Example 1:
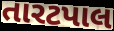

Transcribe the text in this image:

તારટપાલ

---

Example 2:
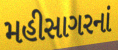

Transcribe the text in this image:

મહીસાગરનાં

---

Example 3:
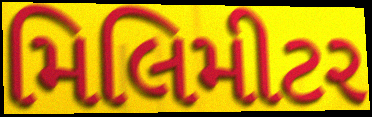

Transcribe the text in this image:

મિલિમીટર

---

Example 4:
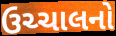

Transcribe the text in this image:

ઉચ્ચાલનો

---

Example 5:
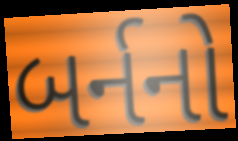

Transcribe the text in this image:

બર્નનો